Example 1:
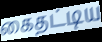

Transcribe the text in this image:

கைதட்டிய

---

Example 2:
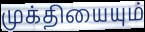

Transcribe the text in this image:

முக்தியையும்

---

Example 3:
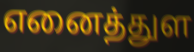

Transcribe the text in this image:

எனைத்துள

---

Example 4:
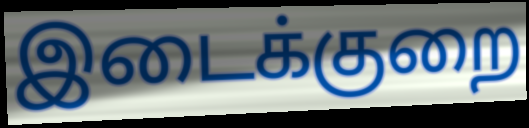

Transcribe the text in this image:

இடைக்குறை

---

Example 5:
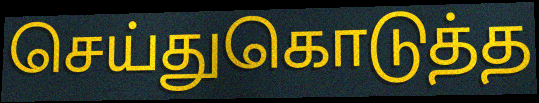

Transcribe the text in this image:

செய்துகொடுத்த